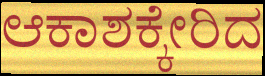
ಆಕಾಶಕ್ಕೇರಿದ